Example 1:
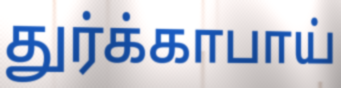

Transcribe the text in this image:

துர்க்காபாய்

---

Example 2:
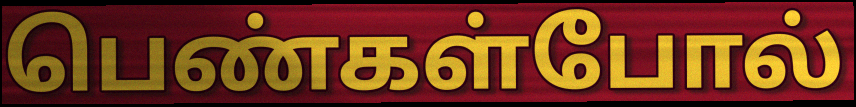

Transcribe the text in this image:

பெண்கள்போல்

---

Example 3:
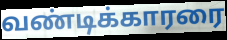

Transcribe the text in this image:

வண்டிக்காரரை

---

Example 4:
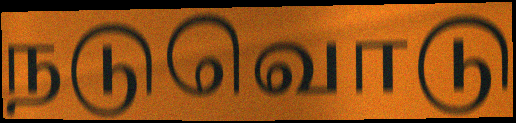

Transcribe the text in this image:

நடுவொடு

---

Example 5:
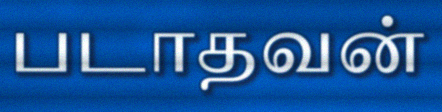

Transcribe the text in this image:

படாதவன்